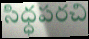
సిధ్ధపరచి